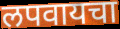
लपवायचा